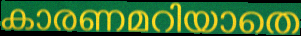
കാരണമറിയാതെ